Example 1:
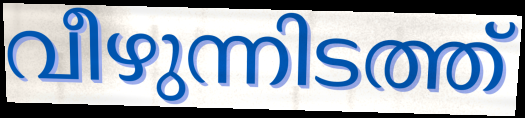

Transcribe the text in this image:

വീഴുന്നിടത്ത്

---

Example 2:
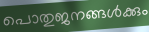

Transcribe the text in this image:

പൊതുജനങ്ങൾക്കും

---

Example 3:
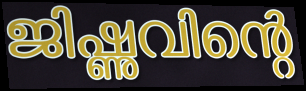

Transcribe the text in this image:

ജിഷ്ണുവിന്റെ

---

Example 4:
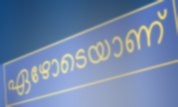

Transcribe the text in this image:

ഏഴോടെയാണ്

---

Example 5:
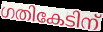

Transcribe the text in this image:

ഗതികേടിന്